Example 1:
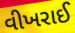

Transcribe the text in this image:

વીખરાઈ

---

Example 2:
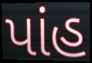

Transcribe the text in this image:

પાંહ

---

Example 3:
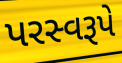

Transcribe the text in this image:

પરસ્વરૂપે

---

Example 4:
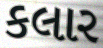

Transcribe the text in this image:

કલાર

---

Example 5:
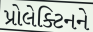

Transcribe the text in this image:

પ્રોલેક્ટિનને